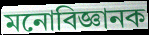
মনোবিজ্ঞানক